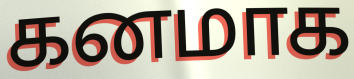
கனமாக